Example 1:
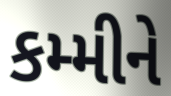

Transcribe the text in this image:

કમ્મીને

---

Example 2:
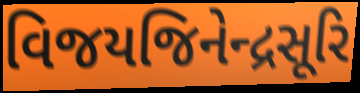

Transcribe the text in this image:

વિજયજિનેન્દ્રસૂરિ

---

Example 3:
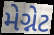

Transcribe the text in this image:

મેગ્નેટ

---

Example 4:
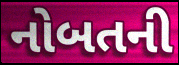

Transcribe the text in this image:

નોબતની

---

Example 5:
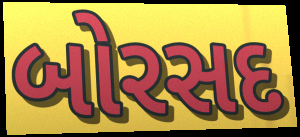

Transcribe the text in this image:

બોરસદ